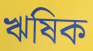
ঋষিক